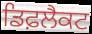
ਡਿਫ਼ਲੈਕਟ